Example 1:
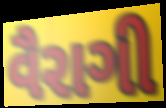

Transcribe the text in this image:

વૈરાગી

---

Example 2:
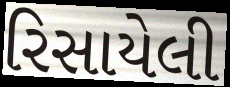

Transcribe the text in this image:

રિસાયેલી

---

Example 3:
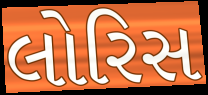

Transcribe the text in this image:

લોરિસ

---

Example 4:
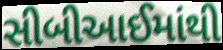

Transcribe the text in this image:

સીબીઆઈમાંથી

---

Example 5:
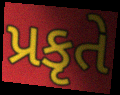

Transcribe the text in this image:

પ્રકૃતે